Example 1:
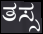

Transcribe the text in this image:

ತಸ್ಸ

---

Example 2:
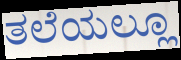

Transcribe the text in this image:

ತಲೆಯಲ್ಲೂ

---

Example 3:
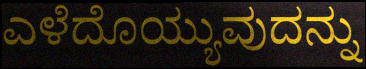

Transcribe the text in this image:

ಎಳೆದೊಯ್ಯುವುದನ್ನು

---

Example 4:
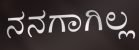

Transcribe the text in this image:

ನನಗಾಗಿಲ್ಲ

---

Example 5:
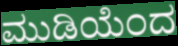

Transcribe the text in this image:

ಮುಡಿಯೆಂದ